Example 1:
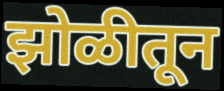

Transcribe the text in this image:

झोळीतून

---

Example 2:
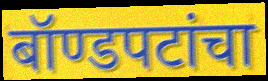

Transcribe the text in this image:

बॉण्डपटांचा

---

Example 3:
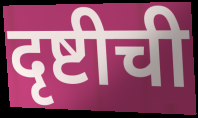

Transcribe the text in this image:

दृष्टीची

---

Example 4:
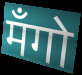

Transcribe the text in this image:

मँगो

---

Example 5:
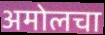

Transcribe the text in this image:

अमोलचा